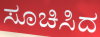
ಸೂಚಿಸಿದ